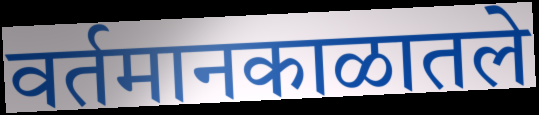
वर्तमानकाळातले